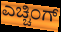
ಎಚ್ಚಿಂಗ್